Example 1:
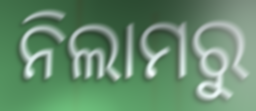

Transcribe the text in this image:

ନିଲାମରୁ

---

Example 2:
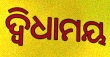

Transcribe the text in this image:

ଦ୍ୱିଧାମୟ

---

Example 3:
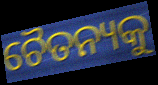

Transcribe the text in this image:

ଚୈତନ୍ୟକୁ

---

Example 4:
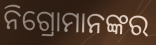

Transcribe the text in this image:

ନିଗ୍ରୋମାନଙ୍କର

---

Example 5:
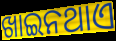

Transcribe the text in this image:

ଖାଇନଥାଏ